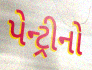
પેન્ટ્રીનો